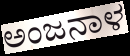
ಅಂಜನಾಳ